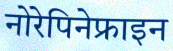
नोरेपिनेफ्राइन